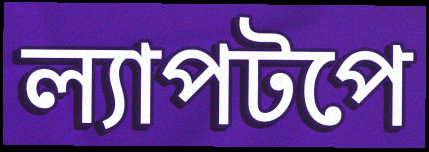
ল্যাপটপে